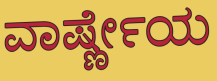
ವಾರ್ಷ್ಣೇಯ